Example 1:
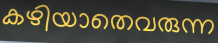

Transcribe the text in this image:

കഴിയാതെവരുന്ന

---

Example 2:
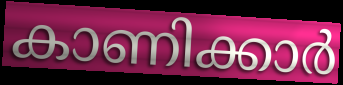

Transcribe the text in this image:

കാണിക്കാർ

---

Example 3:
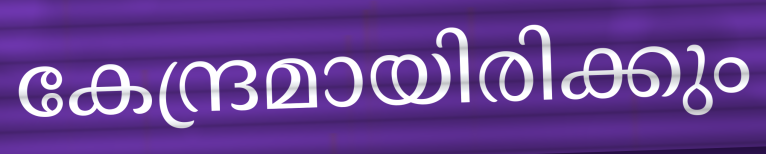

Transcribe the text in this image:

കേന്ദ്രമായിരിക്കും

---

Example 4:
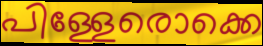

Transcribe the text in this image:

പിള്ളേരൊക്കെ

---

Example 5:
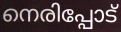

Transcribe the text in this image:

നെരിപ്പോട്